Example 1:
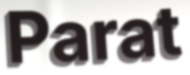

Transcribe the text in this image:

Parat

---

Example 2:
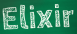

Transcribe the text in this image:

Elixir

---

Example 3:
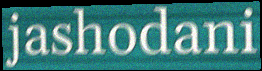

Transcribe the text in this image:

jashodani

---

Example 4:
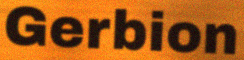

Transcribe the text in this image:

Gerbion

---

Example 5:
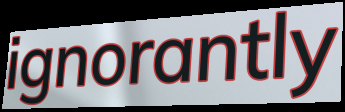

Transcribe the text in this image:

ignorantly